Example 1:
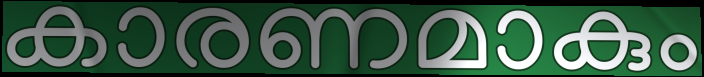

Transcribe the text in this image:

കാരണമാകും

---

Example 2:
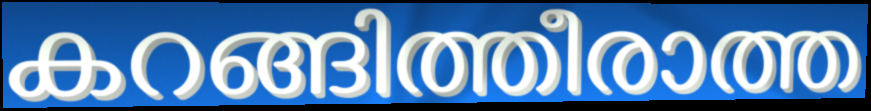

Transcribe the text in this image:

കറങ്ങിത്തീരാത്ത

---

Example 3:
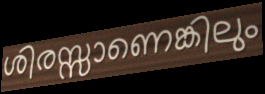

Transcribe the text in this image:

ശിരസ്സാണെങ്കിലും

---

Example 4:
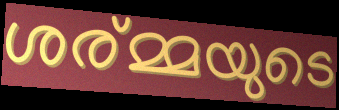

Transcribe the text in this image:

ശര്മ്മയുടെ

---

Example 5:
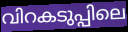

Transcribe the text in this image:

വിറകടുപ്പിലെ